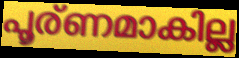
പൂര്ണമാകില്ല